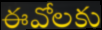
ఈవోలకు